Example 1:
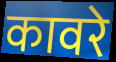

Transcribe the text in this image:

कावरे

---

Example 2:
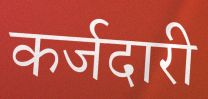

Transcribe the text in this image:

कर्जदारी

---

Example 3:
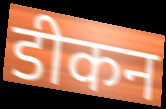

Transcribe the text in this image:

डीकन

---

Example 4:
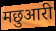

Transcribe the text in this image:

मछुआरी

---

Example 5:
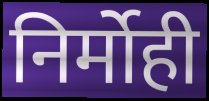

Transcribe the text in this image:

निर्मोही